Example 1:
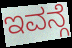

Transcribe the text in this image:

ಇವನ್ಗೆ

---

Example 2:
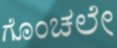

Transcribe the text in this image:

ಗೊಂಚಲೇ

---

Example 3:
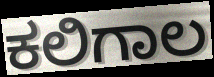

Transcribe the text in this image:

ಕಲಿಗಾಲ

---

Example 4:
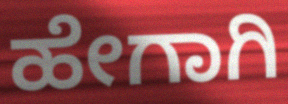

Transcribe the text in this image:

ಹೇಗಾಗಿ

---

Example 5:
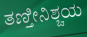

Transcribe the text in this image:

ತಣ್ತೀನಿಶ್ಚಯ